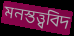
মনস্তত্ত্ববিদ